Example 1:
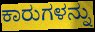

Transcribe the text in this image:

ಕಾರುಗಳನ್ನು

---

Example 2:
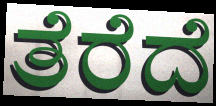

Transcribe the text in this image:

ತೆರೆದೆ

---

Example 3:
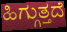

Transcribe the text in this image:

ಹಿಗ್ಗುತ್ತದೆ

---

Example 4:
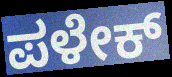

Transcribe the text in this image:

ಪಳೇಕ್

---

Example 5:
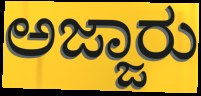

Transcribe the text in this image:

ಅಜ್ಜಾರು